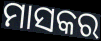
ମାସକର